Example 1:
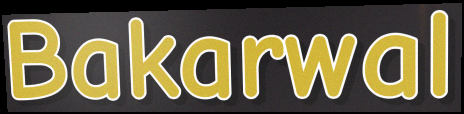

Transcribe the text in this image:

Bakarwal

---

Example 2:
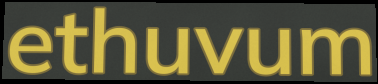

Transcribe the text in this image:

ethuvum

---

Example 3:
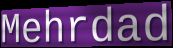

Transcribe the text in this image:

Mehrdad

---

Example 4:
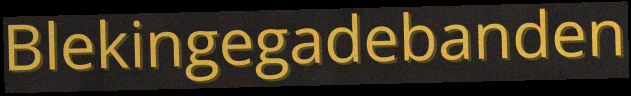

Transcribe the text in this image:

Blekingegadebanden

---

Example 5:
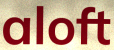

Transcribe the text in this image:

aloft